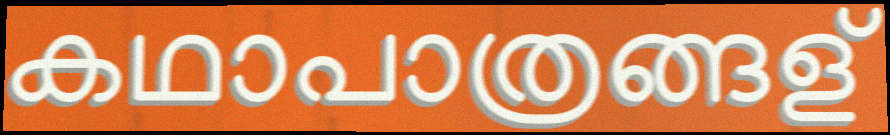
കഥാപാത്രങ്ങള്